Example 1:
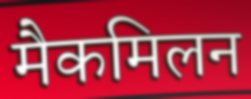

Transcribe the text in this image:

मैकमिलन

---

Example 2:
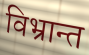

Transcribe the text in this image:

विभ्रान्त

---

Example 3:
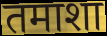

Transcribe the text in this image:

तमाशा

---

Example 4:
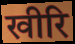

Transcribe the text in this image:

खीरि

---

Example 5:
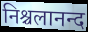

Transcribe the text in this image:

निश्चलानन्द